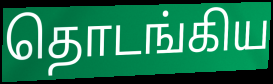
தொடங்கிய